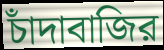
চাঁদাবাজির